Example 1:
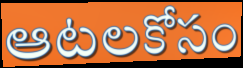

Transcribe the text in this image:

ఆటలకోసం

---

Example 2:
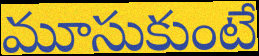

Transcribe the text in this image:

మూసుకుంటే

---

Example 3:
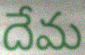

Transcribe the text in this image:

దేమ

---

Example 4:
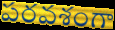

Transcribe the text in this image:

పరవశంగా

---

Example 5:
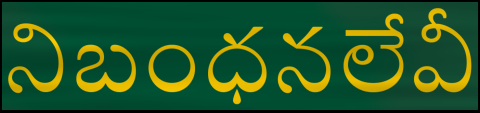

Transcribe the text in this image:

నిబంధనలేవీ